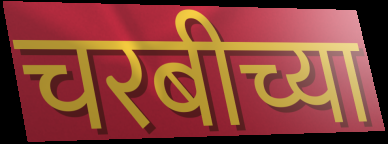
चरबीच्या